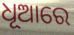
ଧୂଆରେ